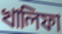
খালিফা